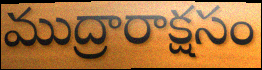
ముద్రారాక్షసం